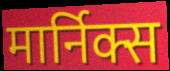
मार्निक्स